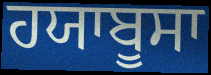
ਹਯਾਬੂਸਾ